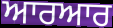
ਆਰਆਰ